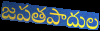
జపతపాదుల